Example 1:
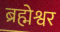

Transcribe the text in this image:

ब्रह्मेश्वर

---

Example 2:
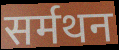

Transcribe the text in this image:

सर्मथन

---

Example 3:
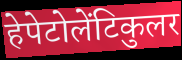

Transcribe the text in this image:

हेपेटोलेंटिकुलर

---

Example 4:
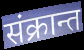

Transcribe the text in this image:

संक्रान्त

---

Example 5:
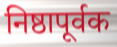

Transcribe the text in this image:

निष्ठापूर्वक